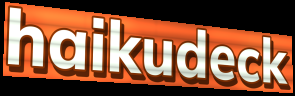
haikudeck